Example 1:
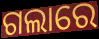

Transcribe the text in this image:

ଗଲାରେ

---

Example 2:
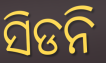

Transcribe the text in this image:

ସିଡନି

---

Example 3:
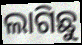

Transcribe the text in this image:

ଲାଗିଛୁ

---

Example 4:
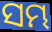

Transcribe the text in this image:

ସମ୍ଭ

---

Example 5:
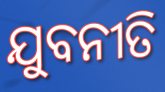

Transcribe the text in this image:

ଯୁବନୀତି